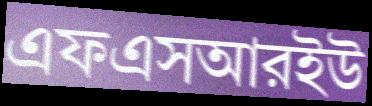
এফএসআরইউ